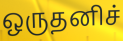
ஒருதனிச்